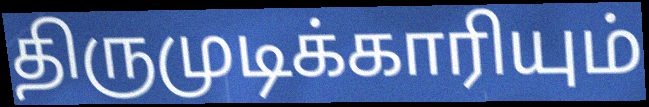
திருமுடிக்காரியும்